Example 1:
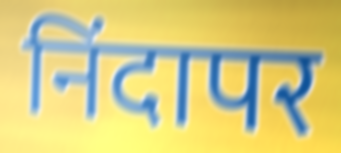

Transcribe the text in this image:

निंदापर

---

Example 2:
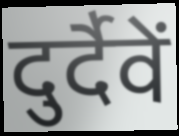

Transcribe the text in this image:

दुर्दैवें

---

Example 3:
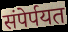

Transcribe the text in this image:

संपेर्पयत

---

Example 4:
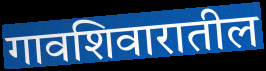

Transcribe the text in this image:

गावशिवारातील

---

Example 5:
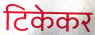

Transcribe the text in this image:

टिकेकर